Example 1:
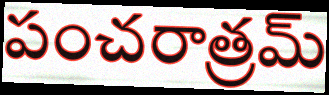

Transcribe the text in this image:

పంచరాత్రమ్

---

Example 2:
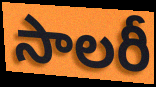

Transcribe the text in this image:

సాలరీ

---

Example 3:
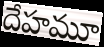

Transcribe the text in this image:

దేహమూ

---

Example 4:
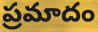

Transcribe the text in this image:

ప్రమాదం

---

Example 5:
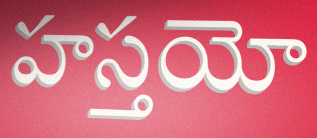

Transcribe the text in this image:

హస్తయో